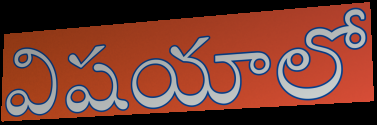
విషయాలో